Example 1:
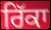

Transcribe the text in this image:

ਰਿੱਕਾ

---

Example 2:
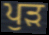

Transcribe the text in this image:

ਪੁੜ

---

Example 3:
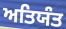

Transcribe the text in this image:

ਅਤਿਯੰਤ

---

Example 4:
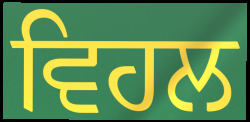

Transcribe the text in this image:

ਵਿਹਲ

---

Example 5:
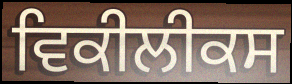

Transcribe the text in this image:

ਵਿਕੀਲੀਕਸ